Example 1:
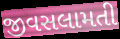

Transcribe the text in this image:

જીવસલામતી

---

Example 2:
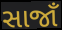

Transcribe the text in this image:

સાજાઁ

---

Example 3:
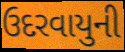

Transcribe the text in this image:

ઉદરવાયુની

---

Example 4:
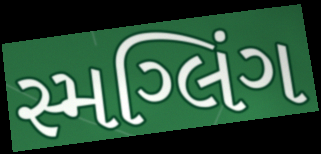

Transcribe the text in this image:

સ્મગ્લિંગ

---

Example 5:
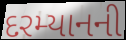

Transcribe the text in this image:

દરમ્યાનની